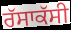
ਰੱਸਾਕੱਸੀ